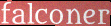
falconer